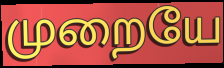
முறையே